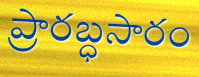
ప్రారబ్ధసారం